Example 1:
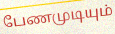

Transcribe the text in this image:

பேணமுடியும்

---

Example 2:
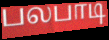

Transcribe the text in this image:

பலபாடி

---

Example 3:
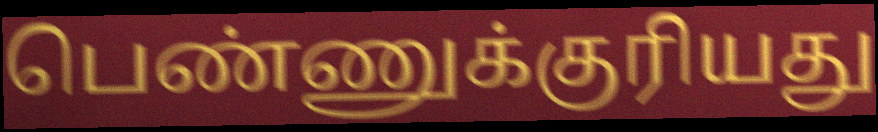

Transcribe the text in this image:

பெண்ணுக்குரியது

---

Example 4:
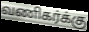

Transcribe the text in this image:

வணிகர்க்கு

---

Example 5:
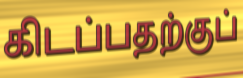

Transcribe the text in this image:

கிடப்பதற்குப்